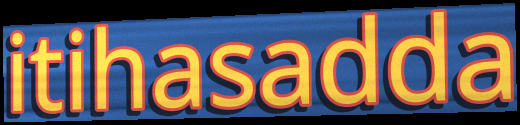
itihasadda